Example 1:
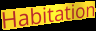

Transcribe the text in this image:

Habitation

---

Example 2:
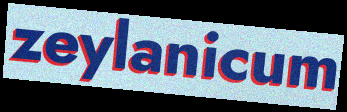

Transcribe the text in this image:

zeylanicum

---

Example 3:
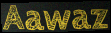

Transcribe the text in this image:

Aawaz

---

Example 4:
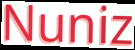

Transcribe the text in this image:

Nuniz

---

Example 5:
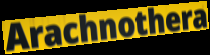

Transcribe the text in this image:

Arachnothera